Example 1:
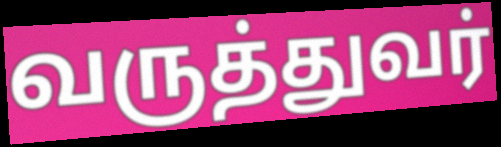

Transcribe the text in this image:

வருத்துவர்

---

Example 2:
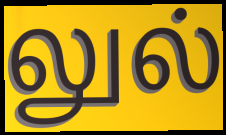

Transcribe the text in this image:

லுல்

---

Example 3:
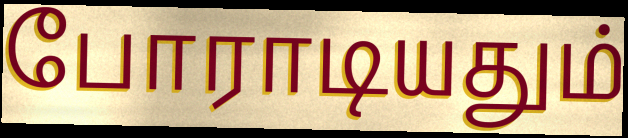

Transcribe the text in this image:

போராடியதும்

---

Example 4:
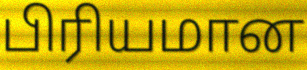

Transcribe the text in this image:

பிரியமான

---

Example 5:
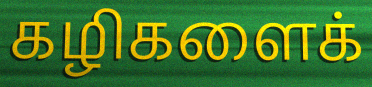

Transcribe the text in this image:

கழிகளைக்